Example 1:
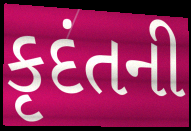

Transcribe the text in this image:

કૃદંતની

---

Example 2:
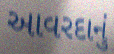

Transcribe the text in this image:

આવરદાનું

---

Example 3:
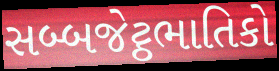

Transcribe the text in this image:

સબ્બજેટ્ઠભાતિકો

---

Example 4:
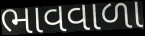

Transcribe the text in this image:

ભાવવાળા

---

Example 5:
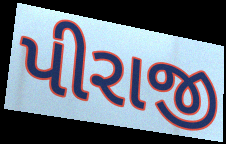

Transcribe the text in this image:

પીરાજી